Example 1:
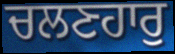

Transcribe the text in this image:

ਚਲਣਹਾਰੁ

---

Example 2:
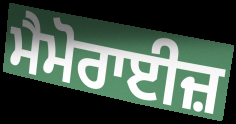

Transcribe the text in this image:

ਮੈਮੋਰਾਈਜ਼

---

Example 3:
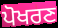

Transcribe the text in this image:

ਪੋਖਰਣ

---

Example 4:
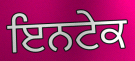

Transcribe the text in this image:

ਇਨਟੇਕ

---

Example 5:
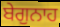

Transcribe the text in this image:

ਬੇਗੁਨਾਹ